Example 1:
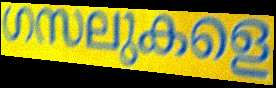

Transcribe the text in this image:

ഗസലുകളെ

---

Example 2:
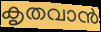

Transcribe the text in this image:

കൃതവാൻ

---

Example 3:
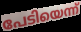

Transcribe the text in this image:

പേടിയെന്ന്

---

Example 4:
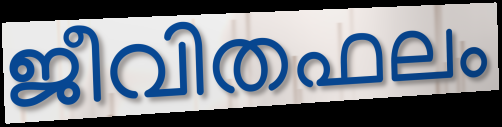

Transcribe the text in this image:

ജീവിതഫലം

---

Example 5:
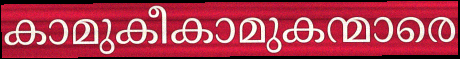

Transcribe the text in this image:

കാമുകീകാമുകന്മാരെ